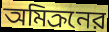
অমিক্রনের